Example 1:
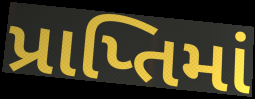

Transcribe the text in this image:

પ્રાપ્તિમાં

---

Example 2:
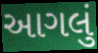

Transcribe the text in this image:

આગલું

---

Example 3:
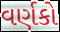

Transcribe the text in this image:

વર્ણકો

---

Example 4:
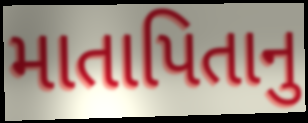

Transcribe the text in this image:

માતાપિતાનુ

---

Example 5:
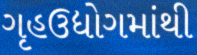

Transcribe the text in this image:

ગૃહઉદ્યોગમાંથી